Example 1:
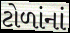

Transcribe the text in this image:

ટોળાંનાં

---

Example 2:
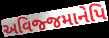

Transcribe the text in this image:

અવિજ્જમાનેપિ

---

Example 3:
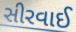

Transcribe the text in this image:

સીરવાઈ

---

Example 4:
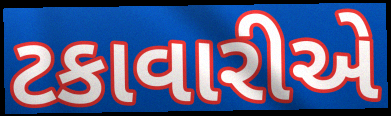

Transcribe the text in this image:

ટકાવારીએ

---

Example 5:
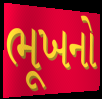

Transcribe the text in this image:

ભૂખનો